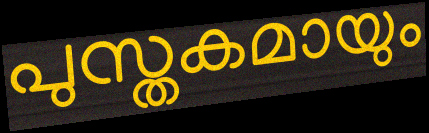
പുസ്തകമായും